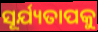
ସୂର୍ଯ୍ୟତାପକୁ